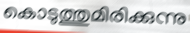
കൊടുത്തുമിരിക്കുന്നു